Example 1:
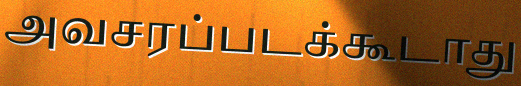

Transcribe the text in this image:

அவசரப்படக்கூடாது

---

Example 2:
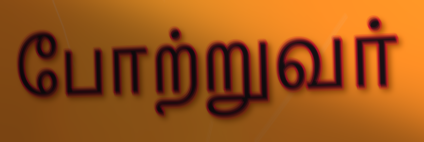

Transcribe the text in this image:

போற்றுவர்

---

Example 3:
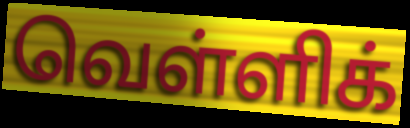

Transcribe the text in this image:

வெள்ளிக்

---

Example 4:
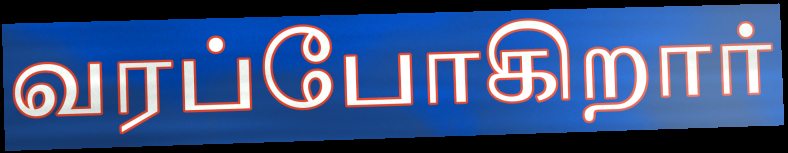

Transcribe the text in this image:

வரப்போகிறார்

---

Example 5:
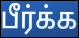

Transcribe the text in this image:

பீர்க்க